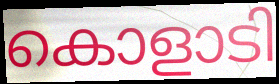
കൊളാടി